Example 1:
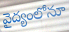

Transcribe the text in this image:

వైద్యంలోనూ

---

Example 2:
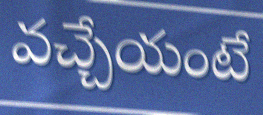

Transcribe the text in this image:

వచ్చేయంటే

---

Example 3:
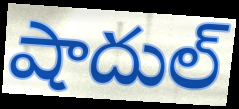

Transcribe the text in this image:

షాదుల్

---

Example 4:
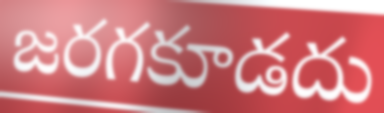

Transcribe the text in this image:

జరగకూడదు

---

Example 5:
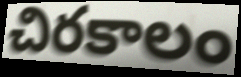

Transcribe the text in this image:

చిరకాలం